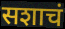
सशाचं